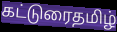
கட்டுரைதமிழ்